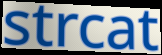
strcat